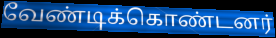
வேண்டிக்கொண்டனர்